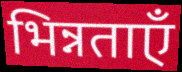
भिन्नताएँ